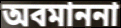
অবমাননা